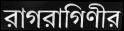
রাগরাগিণীর